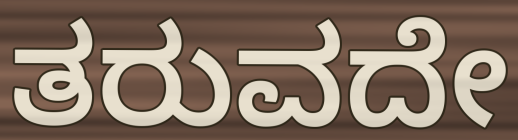
ತರುವದೇ